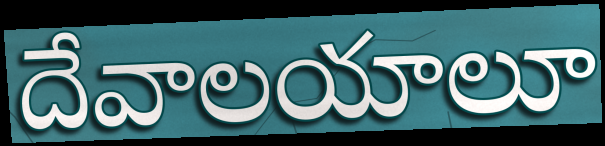
దేవాలయాలూ